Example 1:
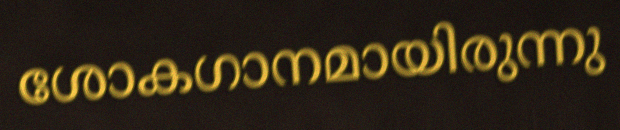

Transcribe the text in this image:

ശോകഗാനമായിരുന്നു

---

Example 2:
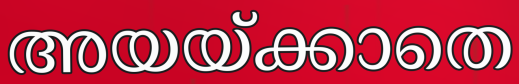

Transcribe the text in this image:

അയയ്ക്കാതെ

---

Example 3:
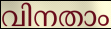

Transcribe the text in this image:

വിനതാം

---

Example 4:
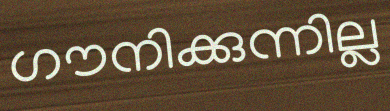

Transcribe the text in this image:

ഗൗനിക്കുന്നില്ല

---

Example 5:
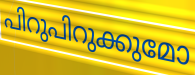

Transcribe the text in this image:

പിറുപിറുക്കുമോ